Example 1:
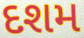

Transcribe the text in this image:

દશમ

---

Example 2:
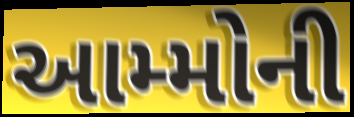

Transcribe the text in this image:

આમ્મોની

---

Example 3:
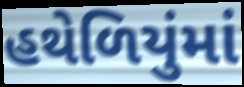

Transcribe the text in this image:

હથેળિયુંમાં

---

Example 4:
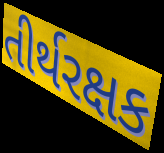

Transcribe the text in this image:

તીર્થરક્ષક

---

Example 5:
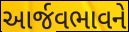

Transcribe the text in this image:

આર્જવભાવને